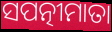
ସପତ୍ନୀମାତା